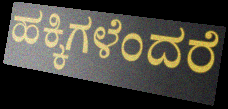
ಹಕ್ಕಿಗಳೆಂದರೆ